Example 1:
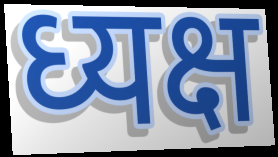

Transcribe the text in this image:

ध्यक्ष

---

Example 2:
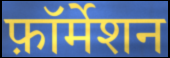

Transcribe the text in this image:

फ़ॉर्मेशन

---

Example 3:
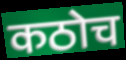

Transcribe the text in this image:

कठोच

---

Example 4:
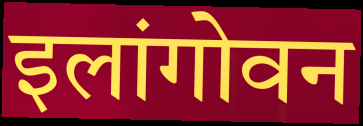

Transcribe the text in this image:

इलांगोवन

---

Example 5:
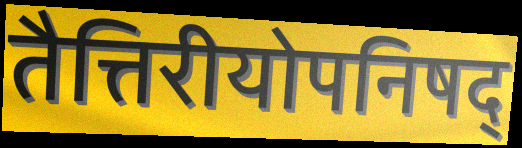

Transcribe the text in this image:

तैत्तिरीयोपनिषद्